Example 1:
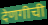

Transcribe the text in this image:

देणगीची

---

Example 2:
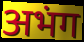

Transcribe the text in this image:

अभंग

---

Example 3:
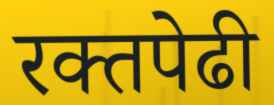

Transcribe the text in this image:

रक्तपेढी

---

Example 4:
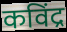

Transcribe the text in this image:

कविंद्र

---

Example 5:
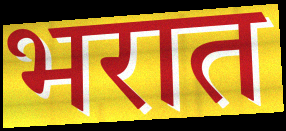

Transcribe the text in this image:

भरात